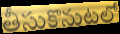
తీసుకొనుటలో